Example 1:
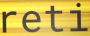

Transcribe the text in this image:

reti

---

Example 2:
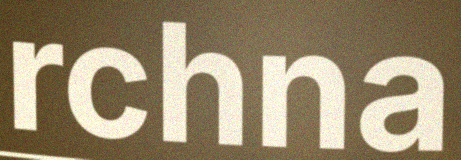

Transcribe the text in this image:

rchna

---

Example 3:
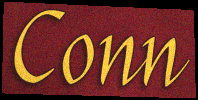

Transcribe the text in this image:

Conn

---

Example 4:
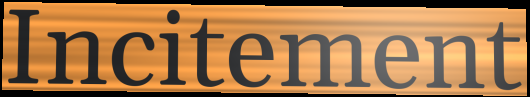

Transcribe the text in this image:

Incitement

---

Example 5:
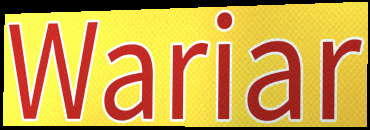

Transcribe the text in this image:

Wariar